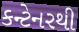
કન્ટેનરથી